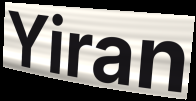
Yiran